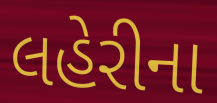
લહેરીના